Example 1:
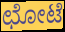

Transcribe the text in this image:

ಛೋಟೆ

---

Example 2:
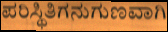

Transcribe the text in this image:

ಪರಿಸ್ಥಿತಿಗನುಗುಣವಾಗಿ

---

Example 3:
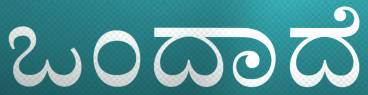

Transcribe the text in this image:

ಒಂದಾದೆ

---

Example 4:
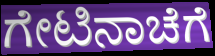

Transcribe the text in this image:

ಗೇಟಿನಾಚೆಗೆ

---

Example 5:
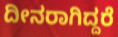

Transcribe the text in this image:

ದೀನರಾಗಿದ್ದರೆ